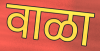
वाळा